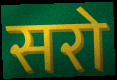
सरो